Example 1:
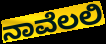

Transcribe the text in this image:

ನಾವೆಲಲಿ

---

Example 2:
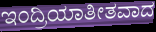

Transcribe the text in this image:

ಇಂದ್ರಿಯಾತೀತವಾದ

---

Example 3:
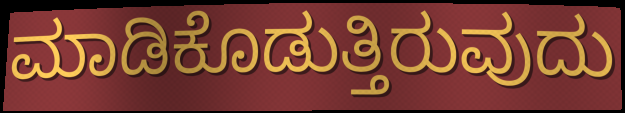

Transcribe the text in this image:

ಮಾಡಿಕೊಡುತ್ತಿರುವುದು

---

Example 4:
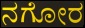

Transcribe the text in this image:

ನಗೋರ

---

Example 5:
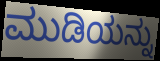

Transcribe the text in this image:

ಮುಡಿಯನ್ನು